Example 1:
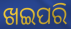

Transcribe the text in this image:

ଖଇପରି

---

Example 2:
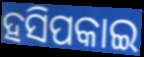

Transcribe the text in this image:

ହସିପକାଇ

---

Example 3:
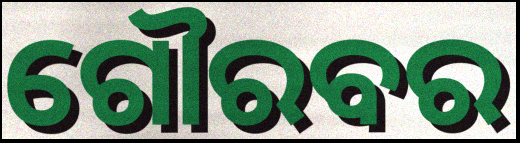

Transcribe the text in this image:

ଗୌରବର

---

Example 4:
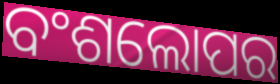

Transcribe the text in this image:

ବଂଶଲୋପର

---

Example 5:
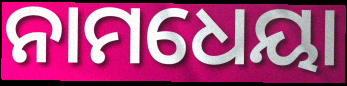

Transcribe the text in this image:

ନାମଧେୟା